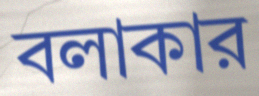
বলাকার